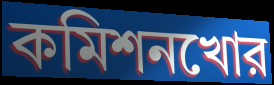
কমিশনখোর